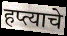
हप्त्याचे